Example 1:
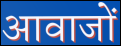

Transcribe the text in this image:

आवाजों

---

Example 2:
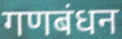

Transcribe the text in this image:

गणबंधन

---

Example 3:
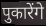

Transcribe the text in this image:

पुकारेंगे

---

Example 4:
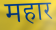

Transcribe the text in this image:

महार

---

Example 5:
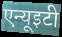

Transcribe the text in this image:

एन्यूइटी